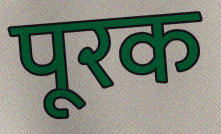
पूरक